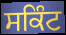
ਸਕਿੰਟ